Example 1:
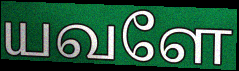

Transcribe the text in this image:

யவளே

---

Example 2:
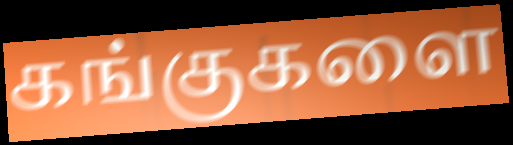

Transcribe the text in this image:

கங்குகளை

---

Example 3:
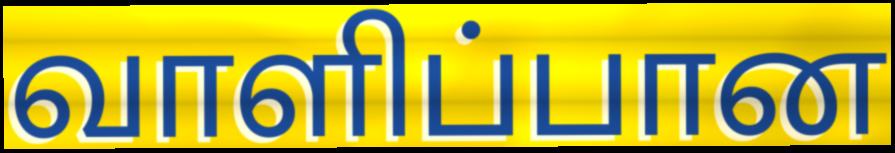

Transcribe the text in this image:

வாளிப்பான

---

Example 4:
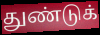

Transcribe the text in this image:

துண்டுக்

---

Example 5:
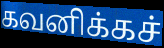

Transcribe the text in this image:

கவனிக்கச்